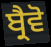
ਬ੍ਰੈਵੋ